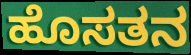
ಹೊಸತನ